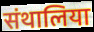
संथालिया